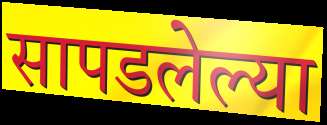
सापडलेल्या